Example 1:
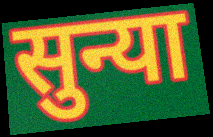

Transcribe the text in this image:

सुन्या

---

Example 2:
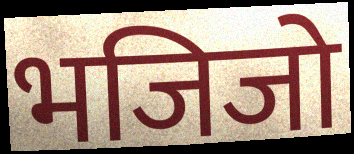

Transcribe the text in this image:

भजिजो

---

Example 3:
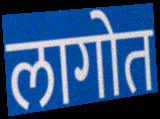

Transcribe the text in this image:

लागोत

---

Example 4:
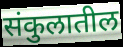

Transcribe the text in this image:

संकुलातील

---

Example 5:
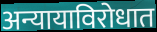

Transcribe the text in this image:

अन्यायाविरोधात